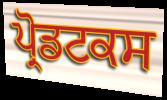
ਪ੍ਰੋਡਟਕਸ